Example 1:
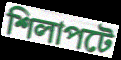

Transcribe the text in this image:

শিলাপটে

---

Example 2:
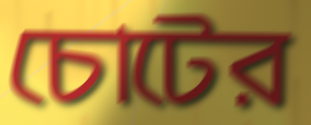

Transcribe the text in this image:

চোটের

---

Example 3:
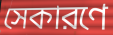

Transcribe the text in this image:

সেকারণে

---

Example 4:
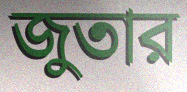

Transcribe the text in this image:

জুতার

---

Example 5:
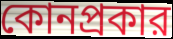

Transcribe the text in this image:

কোনপ্রকার